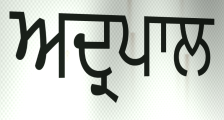
ਅਦ੍ਰਪਾਲ